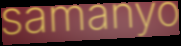
samanyo